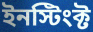
ইনস্টিংক্ট